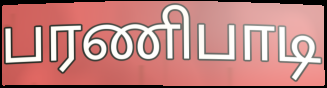
பரணிபாடி